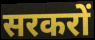
सरकरों